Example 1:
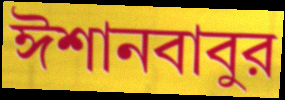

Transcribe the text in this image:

ঈশানবাবুর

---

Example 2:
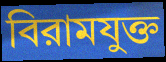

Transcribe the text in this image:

বিরামযুক্ত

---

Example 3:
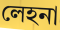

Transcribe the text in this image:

লেহনা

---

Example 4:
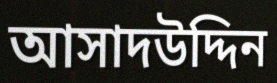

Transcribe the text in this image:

আসাদউদ্দিন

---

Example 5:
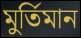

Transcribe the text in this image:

মুর্তিমান